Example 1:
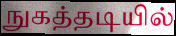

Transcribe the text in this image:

நுகத்தடியில்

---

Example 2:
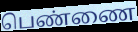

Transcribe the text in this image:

பெண்ணை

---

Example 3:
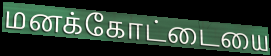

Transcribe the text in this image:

மனக்கோட்டையை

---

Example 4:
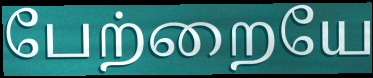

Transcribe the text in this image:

பேற்றையே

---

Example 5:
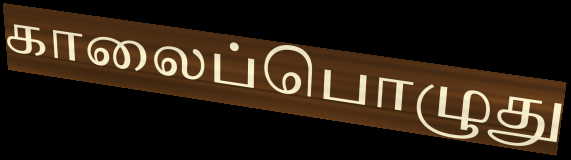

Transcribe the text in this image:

காலைப்பொழுது